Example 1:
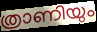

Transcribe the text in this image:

ത്രാണിയും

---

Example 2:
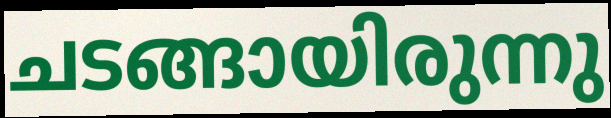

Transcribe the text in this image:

ചടങ്ങായിരുന്നു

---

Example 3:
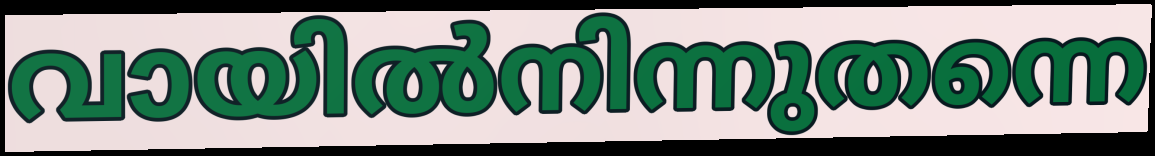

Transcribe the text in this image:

വായിൽനിന്നുതന്നെ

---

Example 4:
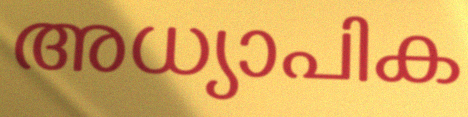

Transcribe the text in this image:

അധ്യാപിക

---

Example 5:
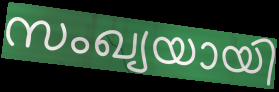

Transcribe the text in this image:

സംഖ്യയായി